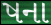
ષના